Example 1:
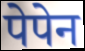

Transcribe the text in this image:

पेपेन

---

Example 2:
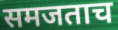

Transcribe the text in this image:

समजताच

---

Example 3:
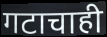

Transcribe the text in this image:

गटाचाही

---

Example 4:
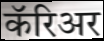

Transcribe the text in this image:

कॅरिअर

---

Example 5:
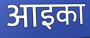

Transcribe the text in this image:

आइका